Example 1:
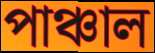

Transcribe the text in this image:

পাঞ্চাল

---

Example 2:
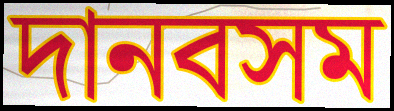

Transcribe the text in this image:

দানবসম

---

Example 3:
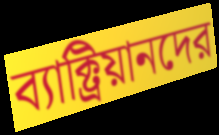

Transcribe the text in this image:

ব্যাক্ট্রিয়ানদের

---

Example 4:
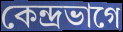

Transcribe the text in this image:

কেন্দ্রভাগে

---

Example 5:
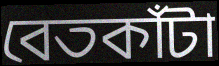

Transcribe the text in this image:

বেতকাঁটা